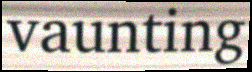
vaunting